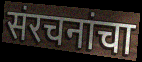
संरचनांचा